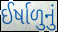
ઈર્ષાળુનું